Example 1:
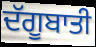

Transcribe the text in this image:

ਦੱਗੂਬਾਤੀ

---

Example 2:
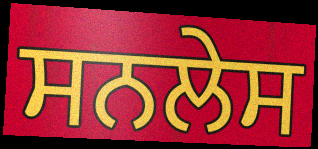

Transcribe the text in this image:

ਸਨਲੇਸ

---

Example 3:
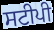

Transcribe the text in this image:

ਸਟੀਪੀ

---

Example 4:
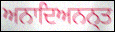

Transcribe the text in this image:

ਅਨਾਦਿਅਨਨ੍ਤ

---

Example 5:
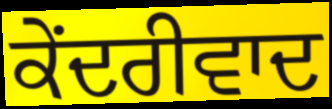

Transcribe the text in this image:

ਕੇਂਦਰੀਵਾਦ